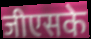
जीएसके